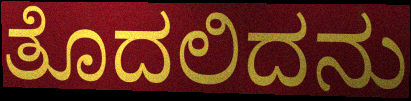
ತೊದಲಿದನು